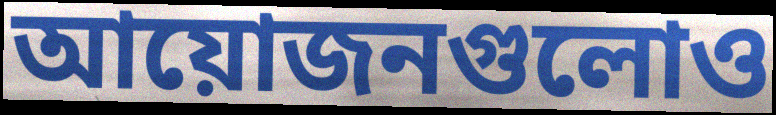
আয়োজনগুলোও